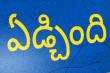
ఏడ్చింది